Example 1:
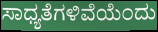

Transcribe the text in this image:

ಸಾಧ್ಯತೆಗಳಿವೆಯೆಂದು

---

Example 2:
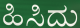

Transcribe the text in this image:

ಹಿಸಿದು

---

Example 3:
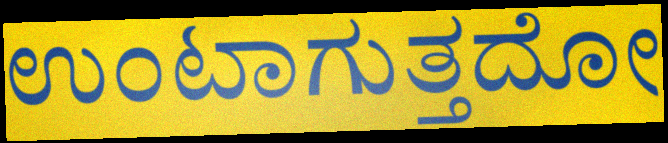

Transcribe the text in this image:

ಉಂಟಾಗುತ್ತದೋ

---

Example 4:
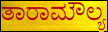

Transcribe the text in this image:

ತಾರಾಮೌಲ್ಯ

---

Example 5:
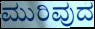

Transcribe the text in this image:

ಮುರಿವುದ